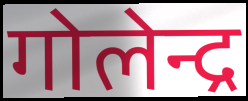
गोलेन्द्र